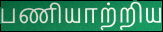
பணியாற்றிய